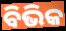
ବିଭିକ